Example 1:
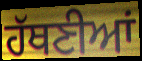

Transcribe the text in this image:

ਹੱਥਣੀਆਂ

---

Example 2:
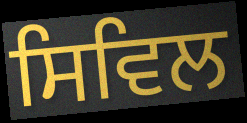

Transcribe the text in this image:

ਸਿਵਿਲ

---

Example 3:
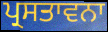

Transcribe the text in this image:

ਪ੍ਰਸਤਾਵਨਾ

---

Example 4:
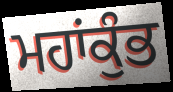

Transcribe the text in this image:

ਮਹਾਂਕੁੰਭ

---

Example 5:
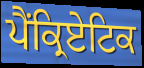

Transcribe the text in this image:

ਪੈਂਕ੍ਰਿਏਟਿਕ